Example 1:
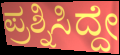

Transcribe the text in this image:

ಪ್ರಶ್ನಿಸಿದ್ದೇ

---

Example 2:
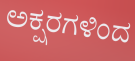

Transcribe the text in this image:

ಅಕ್ಷರಗಳಿಂದ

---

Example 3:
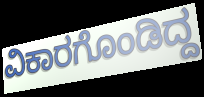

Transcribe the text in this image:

ವಿಕಾರಗೊಂಡಿದ್ದ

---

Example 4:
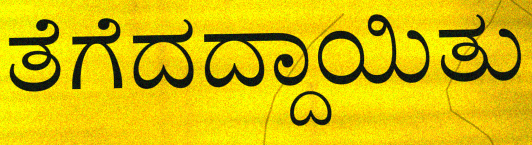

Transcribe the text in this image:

ತೆಗೆದದ್ದಾಯಿತು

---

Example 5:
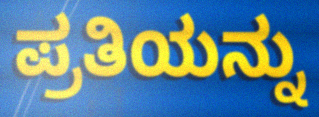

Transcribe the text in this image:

ಪ್ರತಿಯನ್ನು